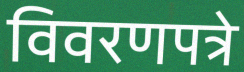
विवरणपत्रे